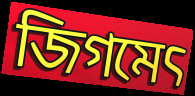
জিগমেৎ